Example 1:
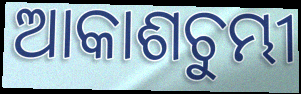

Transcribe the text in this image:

ଆକାଶଚୁମ୍ଭୀ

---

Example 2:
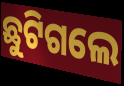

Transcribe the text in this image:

ଛୁଟିଗଲେ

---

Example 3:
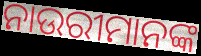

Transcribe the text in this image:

ନାଉରୀମାନଙ୍କ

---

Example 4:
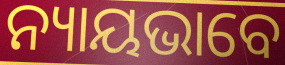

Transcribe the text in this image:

ନ୍ୟାୟଭାବେ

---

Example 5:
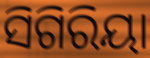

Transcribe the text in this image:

ସିଗିରିୟା